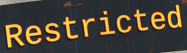
Restricted